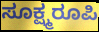
ಸೂಕ್ಷ್ಮರೂಪಿ